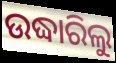
ଉଦ୍ଧାରିଲୁ